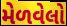
મેળવેલો